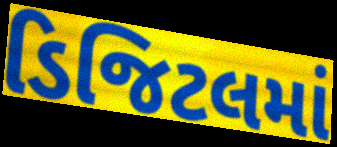
ડિજિટલમાં